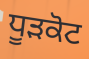
ਧੂੜਕੋਟ